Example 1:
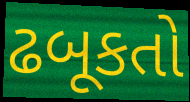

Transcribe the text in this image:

ઢબૂકતો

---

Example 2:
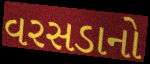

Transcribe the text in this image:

વરસડાનો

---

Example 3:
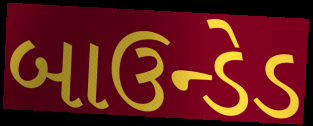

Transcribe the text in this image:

બાઉન્ડેડ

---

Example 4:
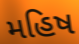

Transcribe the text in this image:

મહિષ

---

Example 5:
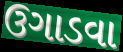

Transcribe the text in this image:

ઉગાડવા